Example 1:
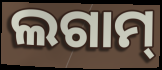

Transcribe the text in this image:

ଲଗାମ୍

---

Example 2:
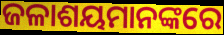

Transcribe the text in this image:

ଜଳାଶୟମାନଙ୍କରେ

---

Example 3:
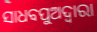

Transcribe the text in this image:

ସାଧବପୁଅଦ୍ୱାରା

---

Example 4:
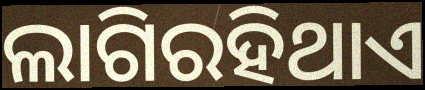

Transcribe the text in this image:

ଲାଗିରହିଥାଏ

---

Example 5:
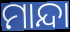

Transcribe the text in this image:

ମାନ୍ଦା